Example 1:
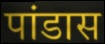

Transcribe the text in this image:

पांडास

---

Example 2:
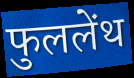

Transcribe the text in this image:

फुललेंथ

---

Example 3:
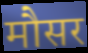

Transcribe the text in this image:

मौसर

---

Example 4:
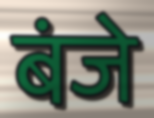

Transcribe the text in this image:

बंजे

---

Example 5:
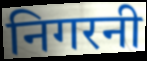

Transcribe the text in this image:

निगरनी